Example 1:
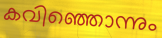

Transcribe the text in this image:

കവിഞ്ഞൊന്നും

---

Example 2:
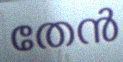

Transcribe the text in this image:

തേൻ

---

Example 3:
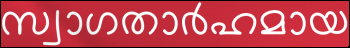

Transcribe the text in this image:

സ്വാഗതാർഹമായ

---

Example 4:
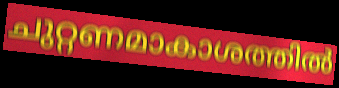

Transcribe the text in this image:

ചുറ്റണമാകാശത്തിൽ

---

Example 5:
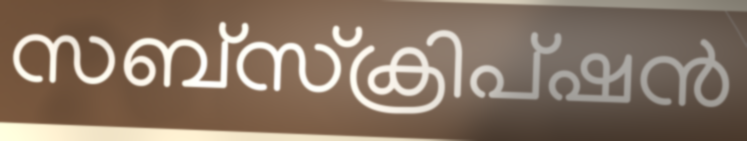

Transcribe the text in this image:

സബ്സ്ക്രിപ്ഷൻ